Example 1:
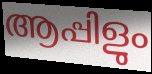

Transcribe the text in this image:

ആപ്പിളും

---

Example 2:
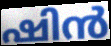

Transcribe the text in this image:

ഷിൻ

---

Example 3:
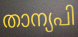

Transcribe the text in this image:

താന്യപി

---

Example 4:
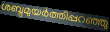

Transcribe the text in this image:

ശബ്ദമുയർത്തിപ്പറഞ്ഞു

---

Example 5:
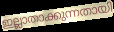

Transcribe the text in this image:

ഇല്ലാതാക്കുന്നതായി